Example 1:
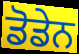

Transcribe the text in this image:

ਡੋਡੇਨ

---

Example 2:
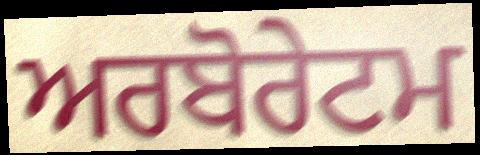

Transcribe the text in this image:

ਅਰਬੋਰੇਟਮ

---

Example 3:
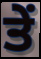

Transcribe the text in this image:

ਤੇੰ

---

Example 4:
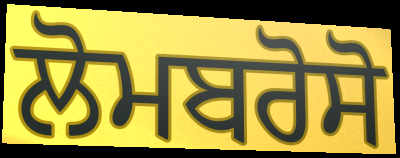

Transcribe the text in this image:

ਲੋਮਬਰੋਸੋ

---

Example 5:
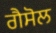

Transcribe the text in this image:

ਗੈਸੋਲ